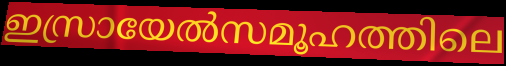
ഇസ്രായേൽസമൂഹത്തിലെ